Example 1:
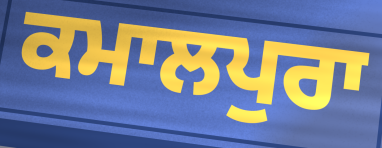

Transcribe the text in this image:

ਕਮਾਲਪੁਰਾ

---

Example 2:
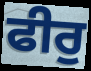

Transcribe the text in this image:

ਫੀਰੁ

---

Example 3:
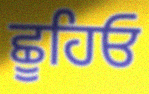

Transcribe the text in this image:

ਛੂਹਿਓ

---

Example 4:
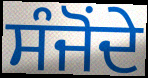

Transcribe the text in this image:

ਸੰਜੋਂਦੇ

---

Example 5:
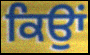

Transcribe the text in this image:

ਕਿਉਾਂ